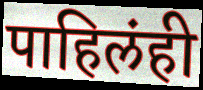
पाहिलंही